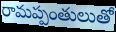
రామప్పంతులుతో